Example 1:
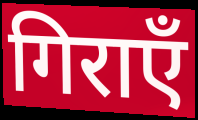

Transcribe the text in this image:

गिराएँ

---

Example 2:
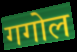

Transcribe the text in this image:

गगोल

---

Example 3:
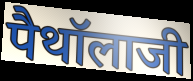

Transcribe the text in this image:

पैथॉलाजी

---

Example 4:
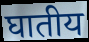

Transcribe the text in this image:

घातीय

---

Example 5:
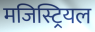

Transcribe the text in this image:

मजिस्ट्रियल